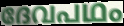
ദേവപഥം